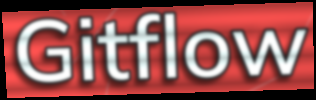
Gitflow